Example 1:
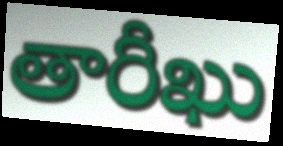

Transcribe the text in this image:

తారీఖు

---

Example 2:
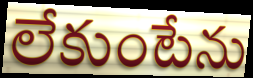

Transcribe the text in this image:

లేకుంటేను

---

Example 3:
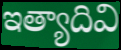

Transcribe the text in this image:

ఇత్యాదివి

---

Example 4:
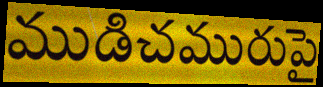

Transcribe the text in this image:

ముడిచమురుపై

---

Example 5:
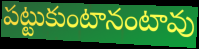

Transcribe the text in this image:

పట్టుకుంటానంటావు